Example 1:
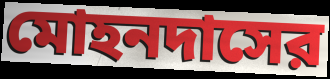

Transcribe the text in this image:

মোহনদাসের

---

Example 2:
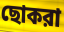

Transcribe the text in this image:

ছোকরা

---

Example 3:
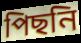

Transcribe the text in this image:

পিছনি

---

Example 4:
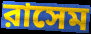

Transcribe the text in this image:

রাসেম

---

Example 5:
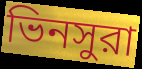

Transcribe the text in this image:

ভিনসুরা